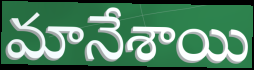
మానేశాయి